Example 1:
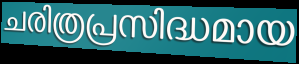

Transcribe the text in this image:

ചരിത്രപ്രസിദ്ധമായ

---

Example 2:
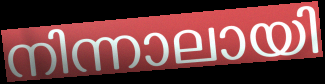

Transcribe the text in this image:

നിന്നാലായി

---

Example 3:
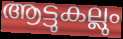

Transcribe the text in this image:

ആട്ടുകല്ലും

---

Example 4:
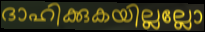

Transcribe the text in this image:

ദാഹിക്കുകയില്ലല്ലോ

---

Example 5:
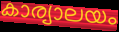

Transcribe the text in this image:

കാര്യാലയം